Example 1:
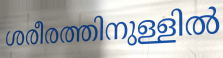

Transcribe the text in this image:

ശരീരത്തിനുള്ളിൽ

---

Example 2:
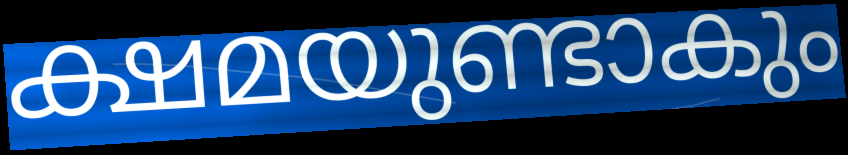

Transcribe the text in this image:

ക്ഷമയുണ്ടാകും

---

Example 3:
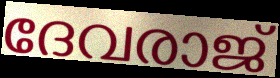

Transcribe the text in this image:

ദേവരാജ്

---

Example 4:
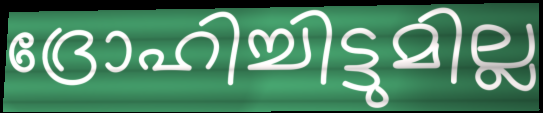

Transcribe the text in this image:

ദ്രോഹിച്ചിട്ടുമില്ല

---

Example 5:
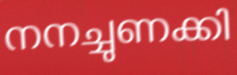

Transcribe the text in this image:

നനച്ചുണക്കി